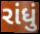
રાંધું